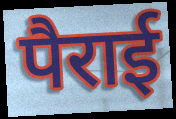
पैराई